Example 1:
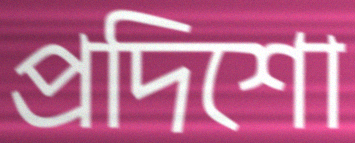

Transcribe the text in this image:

প্রদিশো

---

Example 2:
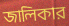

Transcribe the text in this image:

জালিকার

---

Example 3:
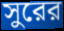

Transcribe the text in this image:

সুরের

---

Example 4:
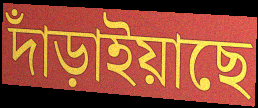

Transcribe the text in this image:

দাঁড়াইয়াছে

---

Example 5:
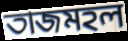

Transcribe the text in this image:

তাজমহল